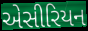
એસીરિયન